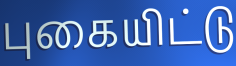
புகையிட்டு